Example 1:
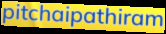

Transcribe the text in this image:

pitchaipathiram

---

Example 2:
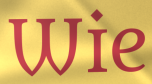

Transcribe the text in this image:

Wie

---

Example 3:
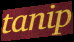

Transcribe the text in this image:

tanip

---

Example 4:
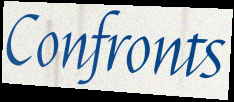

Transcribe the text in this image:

Confronts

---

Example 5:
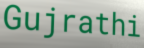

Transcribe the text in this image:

Gujrathi